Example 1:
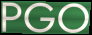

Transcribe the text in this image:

PGO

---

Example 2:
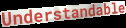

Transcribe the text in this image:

Understandable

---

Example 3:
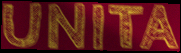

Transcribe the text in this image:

UNITA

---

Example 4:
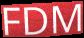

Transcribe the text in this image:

FDM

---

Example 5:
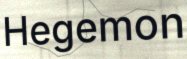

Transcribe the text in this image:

Hegemon